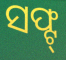
ସଫ୍ଟ୍